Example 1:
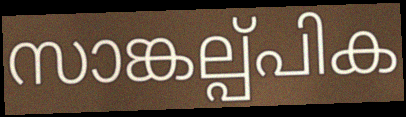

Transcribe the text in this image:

സാങ്കല്പ്പിക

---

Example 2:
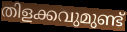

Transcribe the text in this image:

തിളക്കവുമുണ്ട്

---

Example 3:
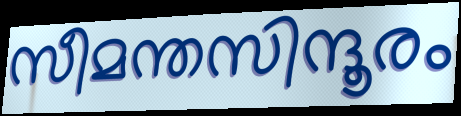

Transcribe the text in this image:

സീമന്തസിന്ദൂരം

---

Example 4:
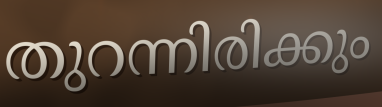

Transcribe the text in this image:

തുറന്നിരിക്കും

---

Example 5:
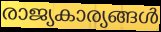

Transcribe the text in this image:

രാജ്യകാര്യങ്ങൾ